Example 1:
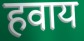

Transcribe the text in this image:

हवाय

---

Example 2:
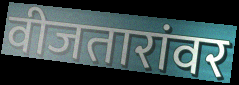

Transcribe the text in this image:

वीजतारांवर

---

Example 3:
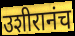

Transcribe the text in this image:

उशीरानंच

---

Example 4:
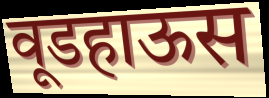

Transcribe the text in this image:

वूडहाऊस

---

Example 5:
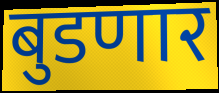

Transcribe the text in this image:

बुडणार